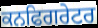
ਕਨਫਿਗਰੇਟਰ